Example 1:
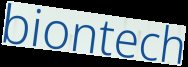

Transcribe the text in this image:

biontech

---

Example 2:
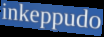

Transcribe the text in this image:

inkeppudo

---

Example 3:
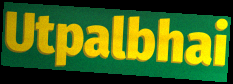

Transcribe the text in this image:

Utpalbhai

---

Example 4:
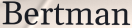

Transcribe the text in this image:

Bertman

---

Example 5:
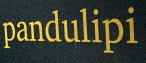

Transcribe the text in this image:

pandulipi